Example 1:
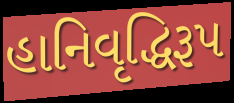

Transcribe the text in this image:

હાનિવૃદ્ધિરૂપ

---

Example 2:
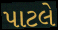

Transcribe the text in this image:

પાટલે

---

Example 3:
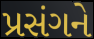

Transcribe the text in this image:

પ્રસંગને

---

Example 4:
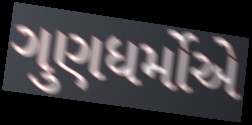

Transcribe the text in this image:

ગુણધર્મોએ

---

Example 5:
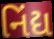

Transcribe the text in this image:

નિંદ્ય